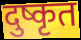
दुष्कृत